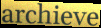
archieve